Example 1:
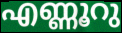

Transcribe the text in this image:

എണ്ണൂറു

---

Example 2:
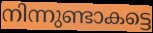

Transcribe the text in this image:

നിന്നുണ്ടാകട്ടെ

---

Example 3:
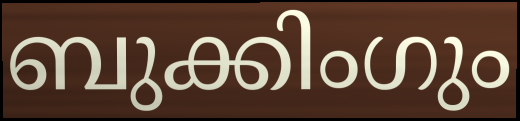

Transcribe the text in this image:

ബുക്കിംഗും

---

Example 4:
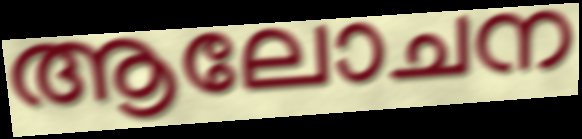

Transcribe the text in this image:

ആലോചന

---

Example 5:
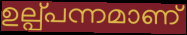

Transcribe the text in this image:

ഉല്പ്പന്നമാണ്